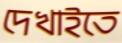
দেখাইতে